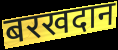
बरखदान